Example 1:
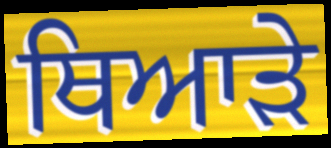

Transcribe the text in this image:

ਥਿਆੜੇ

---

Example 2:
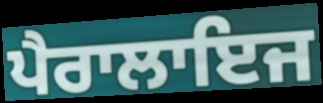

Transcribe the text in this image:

ਪੈਰਾਲਾਇਜ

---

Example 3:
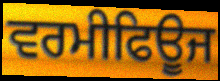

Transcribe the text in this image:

ਵਰਮੀਫਿਊਜ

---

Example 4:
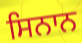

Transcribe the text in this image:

ਸਿਨਾਨ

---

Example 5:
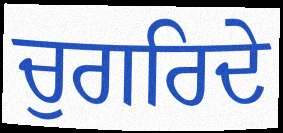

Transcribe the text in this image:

ਚੁਗਰਿਦੇ